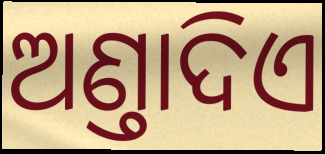
ଅଣ୍ତାଦିଏ